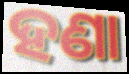
ହଣା